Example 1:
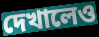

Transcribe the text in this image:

দেখালেও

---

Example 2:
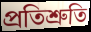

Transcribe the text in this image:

প্রতিশ্রুতি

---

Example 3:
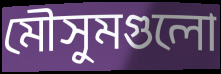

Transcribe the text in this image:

মৌসুমগুলো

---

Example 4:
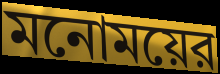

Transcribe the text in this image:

মনোময়ের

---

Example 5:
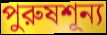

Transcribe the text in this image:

পুরুষশূন্য